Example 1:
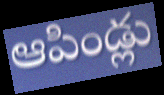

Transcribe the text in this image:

ఆపిండ్లు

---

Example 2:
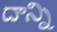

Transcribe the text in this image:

దాన్ని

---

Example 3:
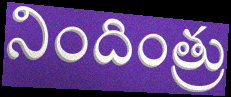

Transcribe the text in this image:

నిందింత్రు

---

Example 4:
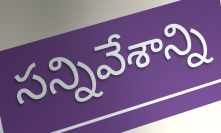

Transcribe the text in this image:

సన్నివేశాన్ని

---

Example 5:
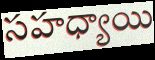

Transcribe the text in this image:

సహధ్యాయి